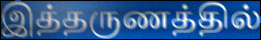
இத்தருணத்தில்